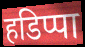
हडिप्पा